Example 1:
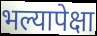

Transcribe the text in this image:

भल्यापेक्षा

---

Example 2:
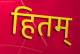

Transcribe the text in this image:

हितम्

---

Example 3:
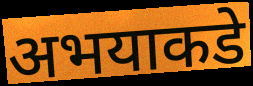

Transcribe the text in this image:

अभयाकडे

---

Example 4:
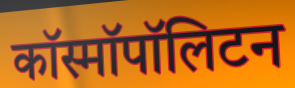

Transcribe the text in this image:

कॉस्मॉपॉलिटन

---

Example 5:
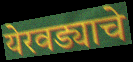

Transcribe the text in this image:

येरवड्याचे